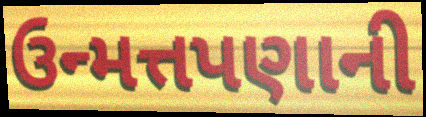
ઉન્મત્તપણાની